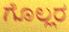
ಗೊಲ್ಲರ